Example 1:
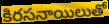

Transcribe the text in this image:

కిరసనాయిలుతో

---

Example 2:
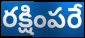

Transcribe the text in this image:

రక్షింపరే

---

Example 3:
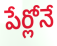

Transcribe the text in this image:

పేర్లోనే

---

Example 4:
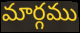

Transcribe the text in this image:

మార్గము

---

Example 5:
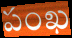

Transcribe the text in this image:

పంఖ